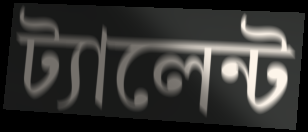
ট্যালেন্ট